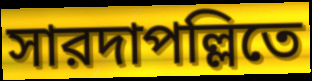
সারদাপল্লিতে